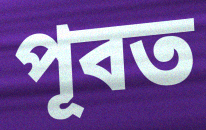
পূবত